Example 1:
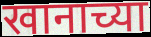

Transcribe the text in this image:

खानाच्या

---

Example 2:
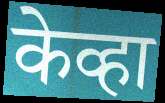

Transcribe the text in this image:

केव्हा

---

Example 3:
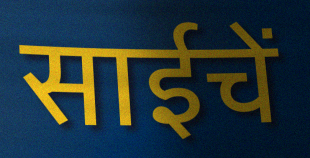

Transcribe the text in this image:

साईचें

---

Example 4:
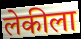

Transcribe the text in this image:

लेकीला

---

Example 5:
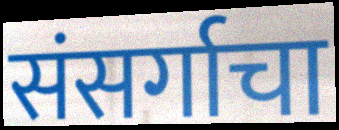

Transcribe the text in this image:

संसर्गाचा